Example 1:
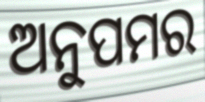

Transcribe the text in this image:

ଅନୁପମର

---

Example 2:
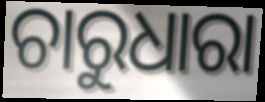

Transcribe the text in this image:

ଚାରୁଧାରା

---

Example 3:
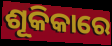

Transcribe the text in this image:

ଶୂକିକାରେ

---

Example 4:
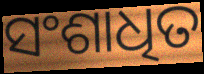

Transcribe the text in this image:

ସଂଶାଧିତ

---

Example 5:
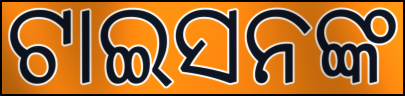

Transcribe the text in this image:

ଟାଇସନଙ୍କ